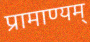
प्रामाण्यम्